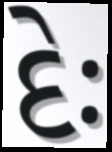
દેઃ